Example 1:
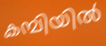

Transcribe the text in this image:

കമ്പിയിൽ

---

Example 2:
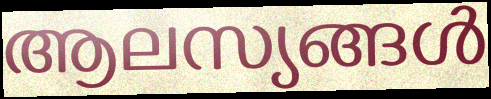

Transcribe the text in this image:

ആലസ്യങ്ങൾ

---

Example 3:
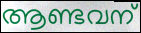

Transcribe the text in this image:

ആണ്ടവന്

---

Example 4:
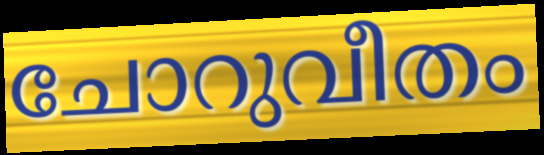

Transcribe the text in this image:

ചോറുവീതം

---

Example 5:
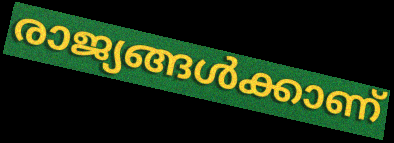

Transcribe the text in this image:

രാജ്യങ്ങൾക്കാണ്